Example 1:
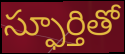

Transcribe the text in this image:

స్ఫూర్తితో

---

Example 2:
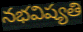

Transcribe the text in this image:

నభవిష్యతి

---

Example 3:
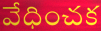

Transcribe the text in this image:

వేధించక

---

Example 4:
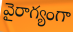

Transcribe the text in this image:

వైరాగ్యంగా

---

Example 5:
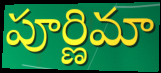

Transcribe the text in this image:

పూర్ణిమా